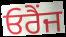
ਓਰੈਂਜ